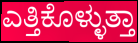
ಎತ್ತಿಕೊಳ್ಳುತ್ತಾ